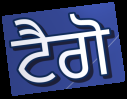
ਟੈਗੋ